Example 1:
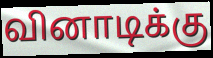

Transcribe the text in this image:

வினாடிக்கு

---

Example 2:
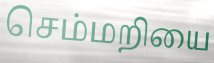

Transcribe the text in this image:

செம்மறியை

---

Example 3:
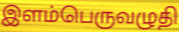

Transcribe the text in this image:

இளம்பெருவழுதி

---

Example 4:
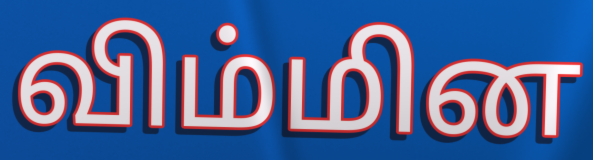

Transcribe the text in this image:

விம்மின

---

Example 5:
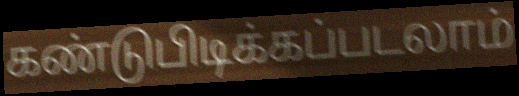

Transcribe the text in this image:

கண்டுபிடிக்கப்படலாம்